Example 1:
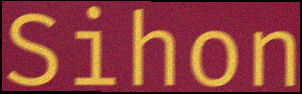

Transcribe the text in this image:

Sihon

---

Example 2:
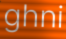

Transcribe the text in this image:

ghni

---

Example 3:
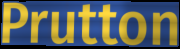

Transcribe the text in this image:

Prutton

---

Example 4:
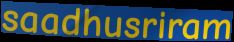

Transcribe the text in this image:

saadhusriram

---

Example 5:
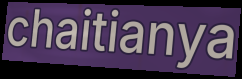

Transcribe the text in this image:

chaitianya